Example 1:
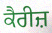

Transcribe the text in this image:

ਕੈਰੀਜ਼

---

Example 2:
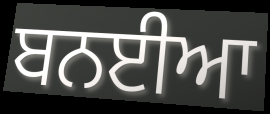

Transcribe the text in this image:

ਬਨਈਆ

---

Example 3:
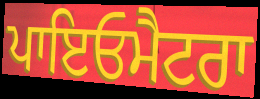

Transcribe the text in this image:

ਪਾਇਓਮੈਟਰਾ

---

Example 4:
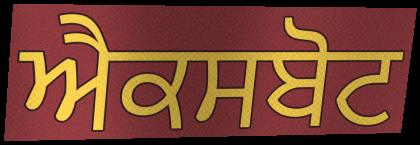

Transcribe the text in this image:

ਐਕਸਬੋਟ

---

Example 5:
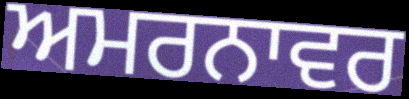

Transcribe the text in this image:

ਅਮਰਨਾਵਰ